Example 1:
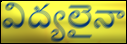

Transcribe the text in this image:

విద్యలైనా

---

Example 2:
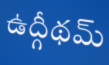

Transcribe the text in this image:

ఉద్గీథమ్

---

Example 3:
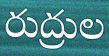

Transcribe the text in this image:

రుద్రుల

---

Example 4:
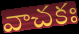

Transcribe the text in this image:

వాచకః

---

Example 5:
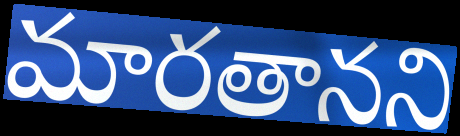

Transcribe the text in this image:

మారతానని